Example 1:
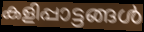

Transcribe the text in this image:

കളിപ്പാട്ടങ്ങൾ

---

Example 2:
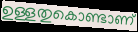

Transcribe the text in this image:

ഉള്ളതുകൊണ്ടാണ്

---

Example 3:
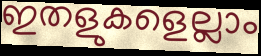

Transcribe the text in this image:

ഇതളുകളെല്ലാം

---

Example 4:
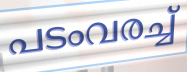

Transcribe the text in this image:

പടംവരച്ച്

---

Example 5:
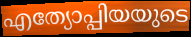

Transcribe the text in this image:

എത്യോപ്പിയയുടെ